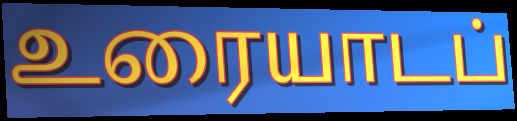
உரையாடப்